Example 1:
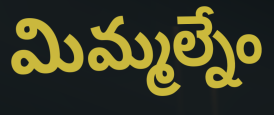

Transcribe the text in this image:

మిమ్మల్నేం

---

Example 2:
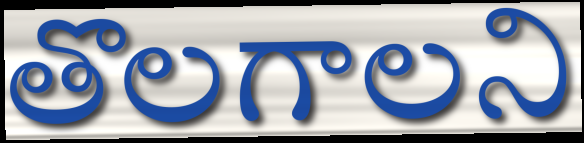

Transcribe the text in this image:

తొలగాలని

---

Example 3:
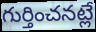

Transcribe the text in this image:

గుర్తించనట్లే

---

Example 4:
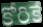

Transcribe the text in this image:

కోరికే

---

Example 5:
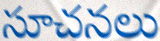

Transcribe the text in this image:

సూచనలు